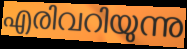
എരിവറിയുന്നു